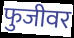
फुजीवर